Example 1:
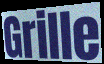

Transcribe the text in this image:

Grille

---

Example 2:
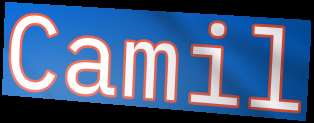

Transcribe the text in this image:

Camil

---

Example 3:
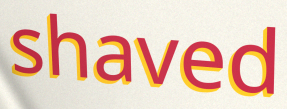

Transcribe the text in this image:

shaved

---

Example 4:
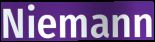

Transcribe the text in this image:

Niemann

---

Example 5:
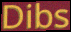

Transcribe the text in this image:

Dibs